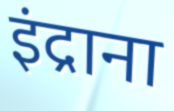
इंद्राना